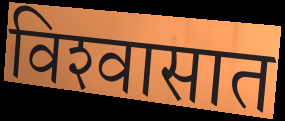
विश्वासात